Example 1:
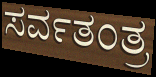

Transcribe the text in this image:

ಸರ್ವತಂತ್ರ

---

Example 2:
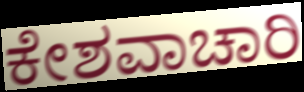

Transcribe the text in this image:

ಕೇಶವಾಚಾರಿ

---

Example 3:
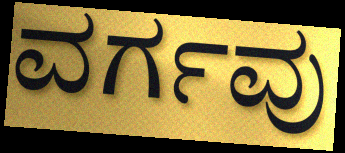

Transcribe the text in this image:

ವರ್ಗವು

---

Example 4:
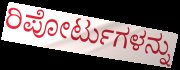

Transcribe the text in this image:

ರಿಪೋರ್ಟುಗಳನ್ನು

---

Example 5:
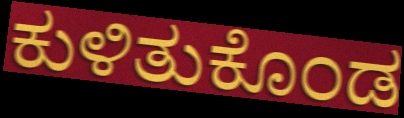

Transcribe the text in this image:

ಕುಳಿತುಕೊಂಡ